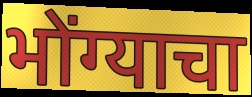
भोंग्याचा